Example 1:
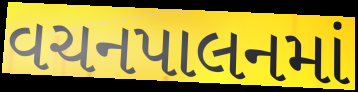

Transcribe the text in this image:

વચનપાલનમાં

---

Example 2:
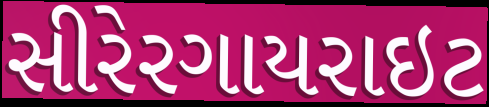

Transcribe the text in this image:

સીરેરગાયરાઇટ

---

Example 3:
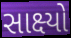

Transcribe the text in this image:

સાક્ષ્યો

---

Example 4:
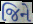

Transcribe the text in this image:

જિને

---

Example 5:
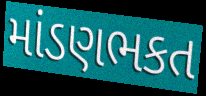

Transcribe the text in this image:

માંડણભકત